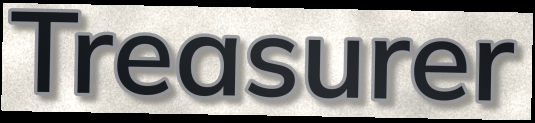
Treasurer